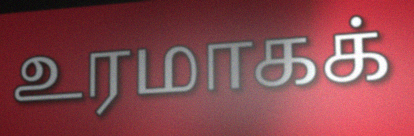
உரமாகக்